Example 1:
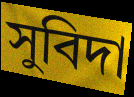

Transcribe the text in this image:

সুবিদা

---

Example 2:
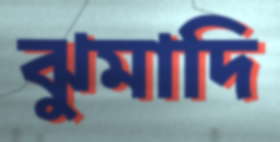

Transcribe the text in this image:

ঝুমাদি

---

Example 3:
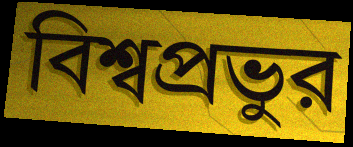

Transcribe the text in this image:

বিশ্বপ্রভুর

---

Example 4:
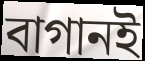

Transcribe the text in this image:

বাগানই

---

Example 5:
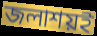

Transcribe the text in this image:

জলাশয়ই